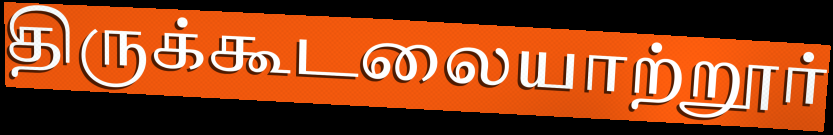
திருக்கூடலையாற்றூர்